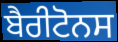
ਬੈਰੀਟੋਨਸ